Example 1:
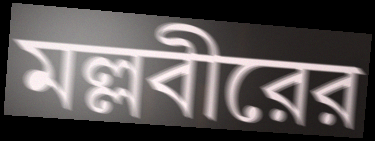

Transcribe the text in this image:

মল্লবীরের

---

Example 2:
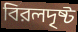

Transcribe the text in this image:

বিরলদৃষ্ট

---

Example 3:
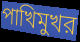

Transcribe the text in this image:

পাখিমুখর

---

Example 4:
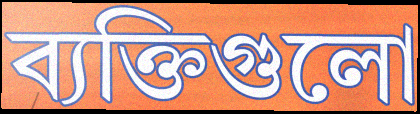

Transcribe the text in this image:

ব্যক্তিগুলো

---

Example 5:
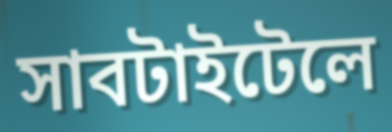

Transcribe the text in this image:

সাবটাইটেলে